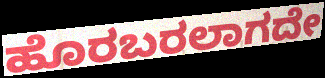
ಹೊರಬರಲಾಗದೇ